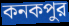
কনকপুর